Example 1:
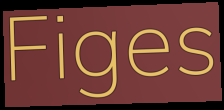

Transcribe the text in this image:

Figes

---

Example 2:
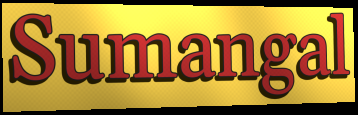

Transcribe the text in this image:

Sumangal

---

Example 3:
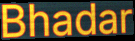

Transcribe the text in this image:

Bhadar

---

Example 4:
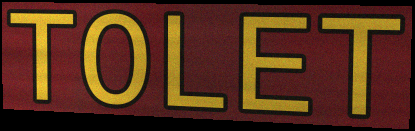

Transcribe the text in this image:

TOLET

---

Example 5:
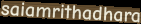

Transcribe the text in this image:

saiamrithadhara